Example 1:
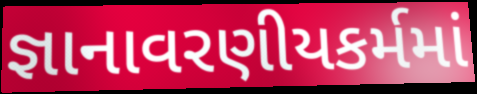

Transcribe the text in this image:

જ્ઞાનાવરણીયકર્મમાં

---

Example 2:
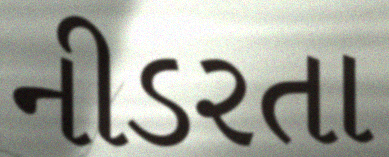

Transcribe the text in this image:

નીડરતા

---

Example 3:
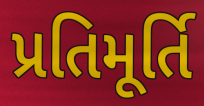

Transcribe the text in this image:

પ્રતિમૂર્તિ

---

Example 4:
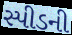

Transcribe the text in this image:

સ્પીડની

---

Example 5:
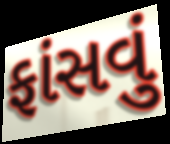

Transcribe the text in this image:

ફાંસવું